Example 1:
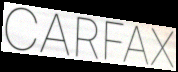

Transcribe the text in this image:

CARFAX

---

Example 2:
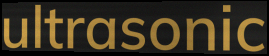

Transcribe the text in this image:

ultrasonic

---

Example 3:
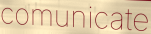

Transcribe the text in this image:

comunicate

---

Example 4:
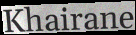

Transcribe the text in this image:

Khairane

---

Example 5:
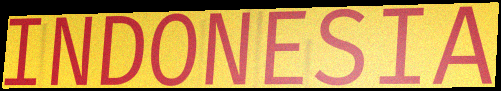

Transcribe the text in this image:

INDONESIA